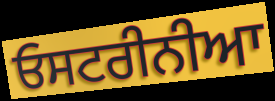
ਓਸਟਰੀਨੀਆ